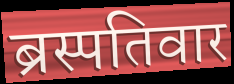
ब्रस्पतिवार